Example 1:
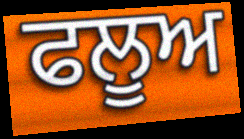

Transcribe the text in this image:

ਫਲੂਅ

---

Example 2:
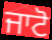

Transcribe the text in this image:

ਜਾਟੋ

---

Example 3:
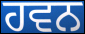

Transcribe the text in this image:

ਹਵਨ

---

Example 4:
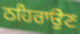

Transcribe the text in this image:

ਠਹਿਰਾਉਣ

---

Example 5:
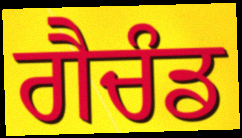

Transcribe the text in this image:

ਗੈਚੰਡ